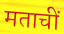
मताचीं